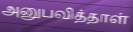
அனுபவித்தாள்